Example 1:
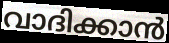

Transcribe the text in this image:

വാദിക്കാൻ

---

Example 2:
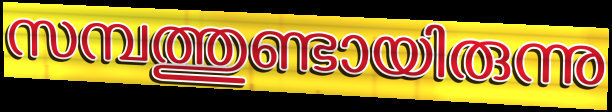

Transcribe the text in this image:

സമ്പത്തുണ്ടായിരുന്നു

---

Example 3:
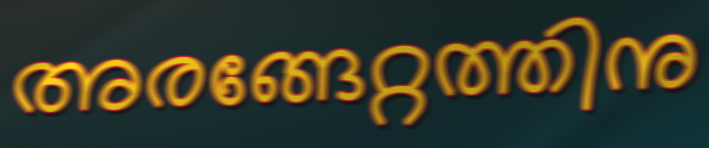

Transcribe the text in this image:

അരങ്ങേറ്റത്തിനു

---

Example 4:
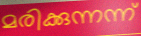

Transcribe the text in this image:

മരിക്കുന്നന്ന്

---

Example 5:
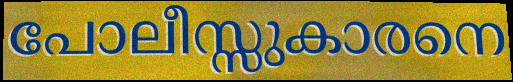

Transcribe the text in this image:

പോലീസ്സുകാരനെ